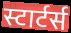
स्टार्टर्स